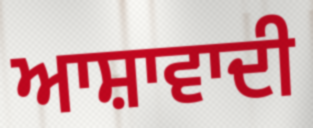
ਆਸ਼ਾਵਾਦੀ